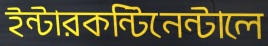
ইন্টারকন্টিনেন্টালে